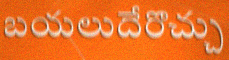
బయలుదేరొచ్చు